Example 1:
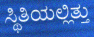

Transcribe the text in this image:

ಸ್ಥಿತಿಯಲ್ಲಿತ್ತು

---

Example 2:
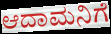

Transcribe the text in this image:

ಆದಾಮನಿಗೆ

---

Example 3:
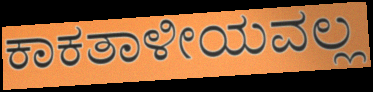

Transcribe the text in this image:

ಕಾಕತಾಳೀಯವಲ್ಲ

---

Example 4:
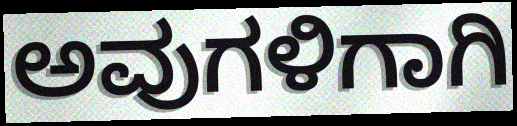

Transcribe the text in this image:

ಅವುಗಳಿಗಾಗಿ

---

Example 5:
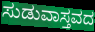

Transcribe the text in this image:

ಸುಡುವಾಸ್ತವದ